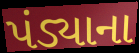
પંડ્યાના